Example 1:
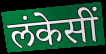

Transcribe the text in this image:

लंकेसीं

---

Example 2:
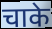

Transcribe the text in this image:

चाके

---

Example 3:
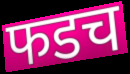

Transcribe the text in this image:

फडच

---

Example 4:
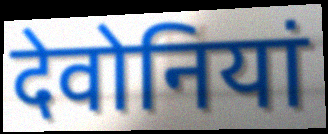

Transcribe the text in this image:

देवोनियां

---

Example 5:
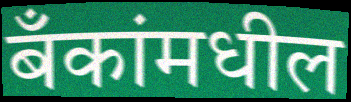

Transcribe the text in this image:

बँकांमधील